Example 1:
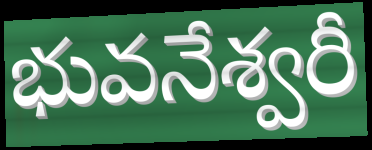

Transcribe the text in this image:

భువనేశ్వరీ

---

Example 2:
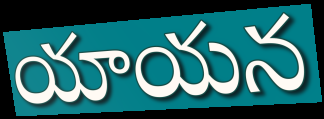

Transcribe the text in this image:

యాయన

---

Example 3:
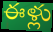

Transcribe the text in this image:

ఈళ్లు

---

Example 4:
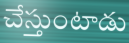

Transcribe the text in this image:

చేస్తుంటాడు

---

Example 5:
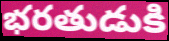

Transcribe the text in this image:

భరతుడుకి